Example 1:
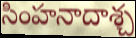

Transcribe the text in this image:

సింహనాదాశ్చ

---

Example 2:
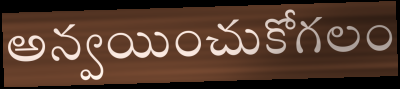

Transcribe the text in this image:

అన్వయించుకోగలం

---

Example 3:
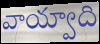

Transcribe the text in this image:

వాయ్వాది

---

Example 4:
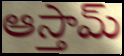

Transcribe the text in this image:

ఆస్తామ్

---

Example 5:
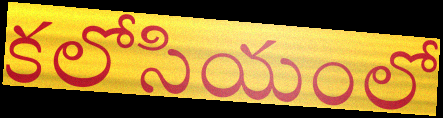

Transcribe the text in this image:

కలోసియంలో